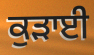
ਕੁੜਾਈ